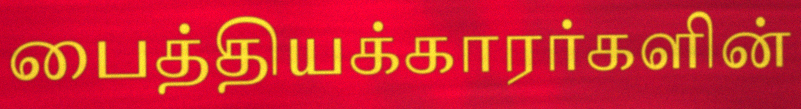
பைத்தியக்காரர்களின்